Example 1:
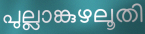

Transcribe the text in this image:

പുല്ലാങ്കുഴലൂതി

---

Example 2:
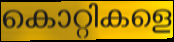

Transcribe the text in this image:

കൊറ്റികളെ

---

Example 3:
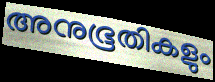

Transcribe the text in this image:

അനുഭൂതികളും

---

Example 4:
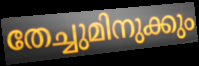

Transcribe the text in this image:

തേച്ചുമിനുക്കും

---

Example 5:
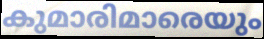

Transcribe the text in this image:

കുമാരിമാരെയും